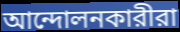
আন্দোলনকারীরা